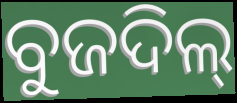
ବୁଜଦିଲ୍